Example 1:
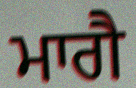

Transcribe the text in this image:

ਮਾਗੈ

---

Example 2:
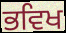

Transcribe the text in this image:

ਭਵਿਖ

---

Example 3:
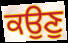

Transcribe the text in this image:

ਕਉਣੁ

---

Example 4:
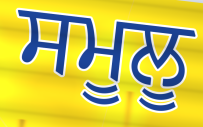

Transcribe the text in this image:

ਸਮੂਲੂ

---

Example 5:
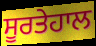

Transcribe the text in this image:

ਸੂਰਤੇਹਾਲ